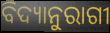
ବିଦ୍ୟାନୁରାଗୀ